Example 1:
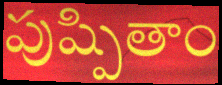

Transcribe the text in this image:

పుష్పితాం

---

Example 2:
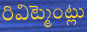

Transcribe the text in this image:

రివిట్మెంట్లు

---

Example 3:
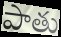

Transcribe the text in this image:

పాతు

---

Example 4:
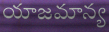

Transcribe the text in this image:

యాజమాన్య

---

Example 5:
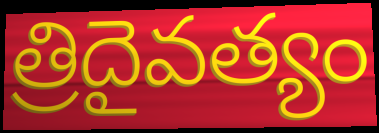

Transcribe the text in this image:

త్రిదైవత్యం